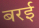
बरई